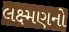
લક્ષ્મણનો